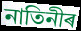
নাতিনীৰ